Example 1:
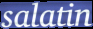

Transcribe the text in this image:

salatin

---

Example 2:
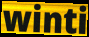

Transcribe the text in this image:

winti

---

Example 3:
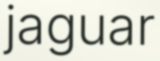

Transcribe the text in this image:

jaguar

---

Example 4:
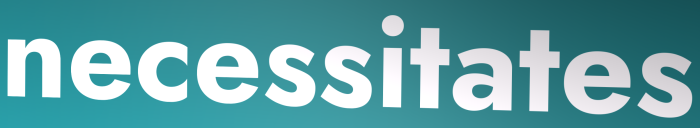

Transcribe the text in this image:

necessitates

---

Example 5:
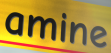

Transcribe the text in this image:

amine